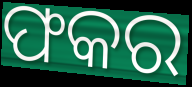
ଫକର